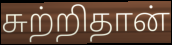
சுற்றிதான்